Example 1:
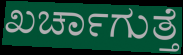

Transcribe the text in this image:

ಖರ್ಚಾಗುತ್ತೆ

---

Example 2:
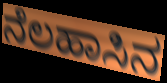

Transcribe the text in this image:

ನೆಲಹಾಸಿನ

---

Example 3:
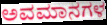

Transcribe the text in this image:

ಅವಮಾನಗಳ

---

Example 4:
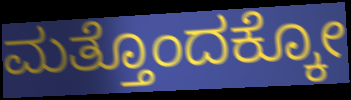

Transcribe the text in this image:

ಮತ್ತೊಂದಕ್ಕೋ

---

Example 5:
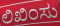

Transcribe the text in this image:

ಲಿಖಿಂಸು